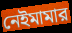
নেইমামার